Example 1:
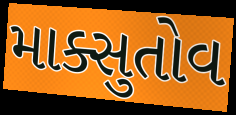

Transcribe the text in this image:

માક્સુતોવ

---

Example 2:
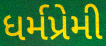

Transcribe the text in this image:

ધર્મપ્રેમી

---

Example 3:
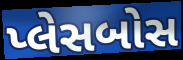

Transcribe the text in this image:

પ્લેસબોસ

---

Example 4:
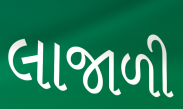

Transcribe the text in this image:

લાજાળી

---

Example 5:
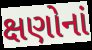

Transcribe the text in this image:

ક્ષણોનાં